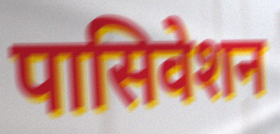
पासिवेशन